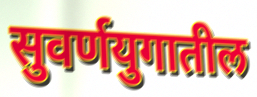
सुवर्णयुगातील